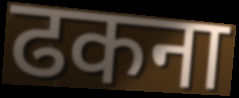
ढकना